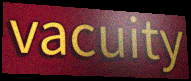
vacuity